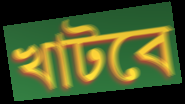
খাটবে